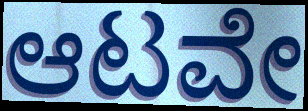
ಆಟವೇ